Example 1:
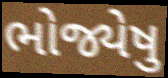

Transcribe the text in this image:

ભોજ્યેષુ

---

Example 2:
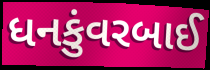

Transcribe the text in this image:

ધનકુંવરબાઈ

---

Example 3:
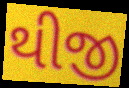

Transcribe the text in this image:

થીજી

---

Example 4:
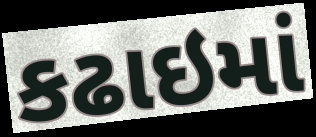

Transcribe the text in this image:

કઢાઇમાં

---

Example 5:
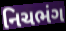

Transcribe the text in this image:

નિચભંગ